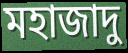
মহাজাদু